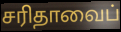
சரிதாவைப்